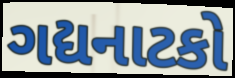
ગદ્યનાટકો